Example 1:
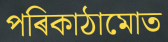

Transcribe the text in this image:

পৰিকাঠামোত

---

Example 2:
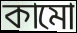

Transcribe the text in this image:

কামো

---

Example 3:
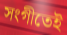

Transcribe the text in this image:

সংগীতেই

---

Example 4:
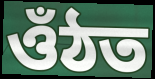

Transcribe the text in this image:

ওঁঠত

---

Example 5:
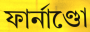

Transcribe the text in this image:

ফাৰ্নাণ্ডো